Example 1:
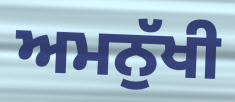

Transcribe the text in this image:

ਅਮਨੁੱਖੀ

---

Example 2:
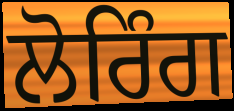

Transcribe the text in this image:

ਲੋਰਿੰਗ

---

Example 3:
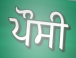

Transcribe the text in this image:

ਪੌਸੀ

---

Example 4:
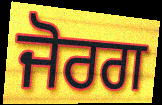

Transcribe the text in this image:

ਜੋਰਗ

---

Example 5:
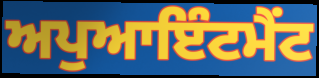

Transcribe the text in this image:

ਅਪੁਆਇੰਟਮੈਂਟ